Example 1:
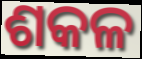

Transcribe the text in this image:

ଶକଳ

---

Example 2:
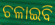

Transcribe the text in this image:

ଚଳାଇବି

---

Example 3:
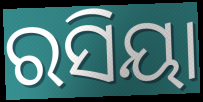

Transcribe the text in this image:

ରସିୟା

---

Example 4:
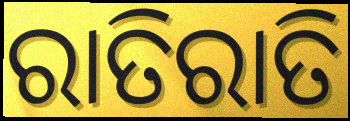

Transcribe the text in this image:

ରାତିରାତି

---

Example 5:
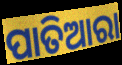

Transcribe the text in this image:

ପାତିଆରା